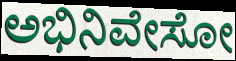
ಅಭಿನಿವೇಸೋ